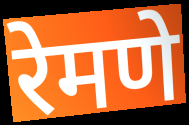
रेमणे